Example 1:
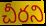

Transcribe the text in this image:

చీరని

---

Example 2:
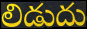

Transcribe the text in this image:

లిడుదు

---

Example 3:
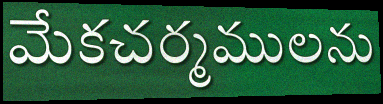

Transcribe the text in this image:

మేకచర్మములను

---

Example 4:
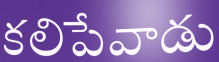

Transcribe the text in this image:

కలిపేవాడు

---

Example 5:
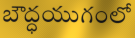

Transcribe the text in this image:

బౌద్ధయుగంలో